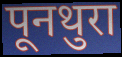
पूनथुरा